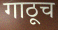
गाठूच